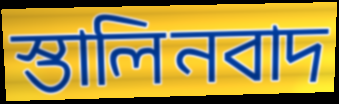
স্তালিনবাদ